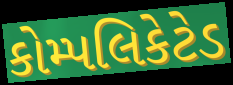
કોમ્પલિકેટેડ